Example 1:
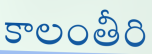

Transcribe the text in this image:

కాలంతీరి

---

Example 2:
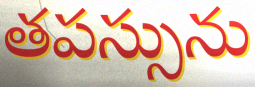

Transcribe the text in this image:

తపస్సును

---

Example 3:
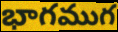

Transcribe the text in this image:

భాగముగ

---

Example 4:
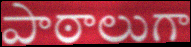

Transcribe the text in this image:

పాఠాలుగా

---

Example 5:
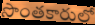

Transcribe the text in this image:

సొంతకారులో